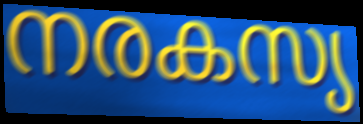
നരകസ്യ